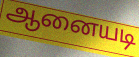
ஆனையடி